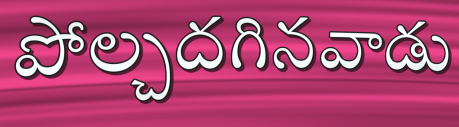
పోల్చదగినవాడు